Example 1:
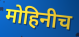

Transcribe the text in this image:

मोहिनीच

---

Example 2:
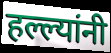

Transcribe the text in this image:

हल्ल्यांनी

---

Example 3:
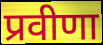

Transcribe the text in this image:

प्रवीणा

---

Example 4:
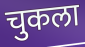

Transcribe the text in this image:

चुकला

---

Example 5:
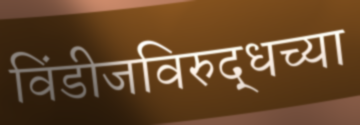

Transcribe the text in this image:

विंडीजविरुद्धच्या